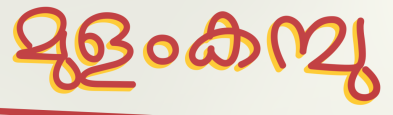
മുളംകമ്പു